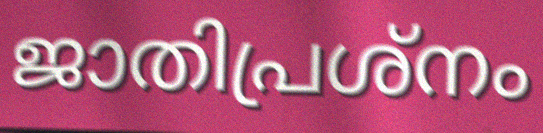
ജാതിപ്രശ്നം